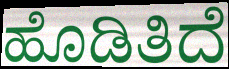
ಹೊಡಿತಿದೆ